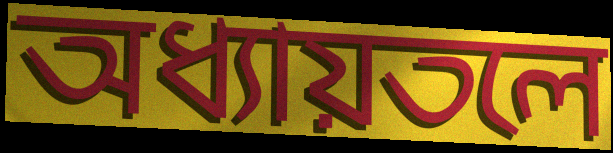
অধ্যায়তলে